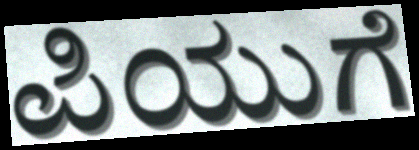
ಪಿಯುಗೆ